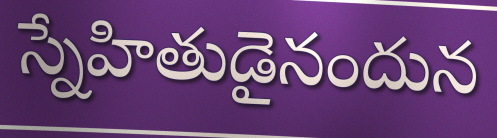
స్నేహితుడైనందున